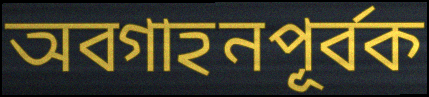
অবগাহনপূর্বক